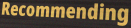
Recommending